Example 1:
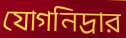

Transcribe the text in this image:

যোগনিদ্রার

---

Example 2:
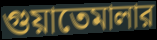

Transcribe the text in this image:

গুয়াতেমালার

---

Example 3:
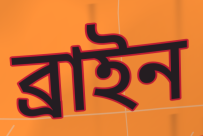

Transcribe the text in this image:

ব্রাইন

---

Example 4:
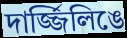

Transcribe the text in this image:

দার্জ্জিলিঙে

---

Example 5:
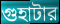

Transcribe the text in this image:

গুহাটার